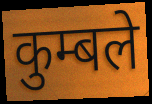
कुम्बले